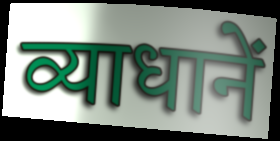
व्याधानें